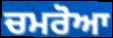
ਚਮਰੋਆ